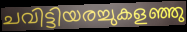
ചവിട്ടിയരച്ചുകളഞ്ഞു